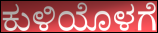
ಕುಳಿಯೊಳಗೆ